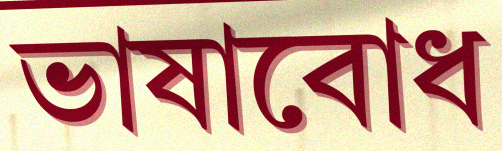
ভাষাবোধ